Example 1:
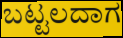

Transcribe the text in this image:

ಬಟ್ಟಲದಾಗ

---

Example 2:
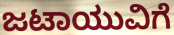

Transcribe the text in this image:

ಜಟಾಯುವಿಗೆ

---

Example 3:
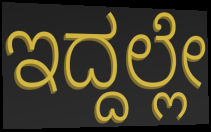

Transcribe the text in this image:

ಇದ್ದಲ್ಲೇ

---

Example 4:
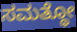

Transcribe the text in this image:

ಸಮತ್ಥೋ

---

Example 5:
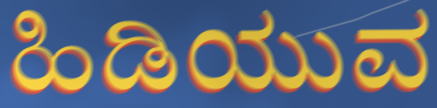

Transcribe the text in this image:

ಹಿಡಿಯುವ